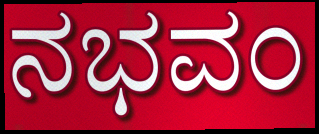
ನಭವಂ